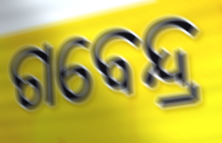
ଗବେନ୍ଦ୍ର